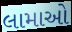
લામાઓ